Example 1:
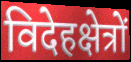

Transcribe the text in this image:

विदेहक्षेत्रों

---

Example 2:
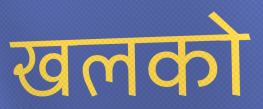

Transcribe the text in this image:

खलको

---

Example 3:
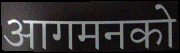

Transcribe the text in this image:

आगमनको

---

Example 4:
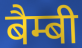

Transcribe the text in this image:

बैम्बी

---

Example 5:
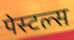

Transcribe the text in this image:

पेस्टल्स